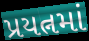
પ્રયત્નમાં